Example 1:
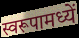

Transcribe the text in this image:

स्वरूपामध्यें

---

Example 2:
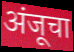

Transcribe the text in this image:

अंजूचा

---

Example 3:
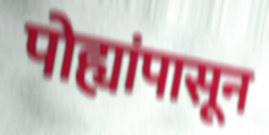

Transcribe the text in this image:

पोह्यांपासून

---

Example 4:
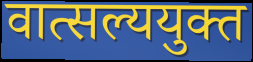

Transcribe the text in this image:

वात्सल्ययुक्त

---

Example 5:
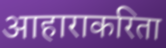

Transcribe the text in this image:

आहाराकरिता